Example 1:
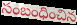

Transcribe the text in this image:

సంబంధించిన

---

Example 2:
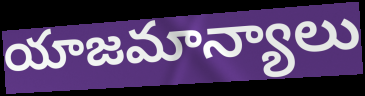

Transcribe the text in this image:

యాజమాన్యాలు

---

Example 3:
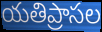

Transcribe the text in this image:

యతిప్రాసల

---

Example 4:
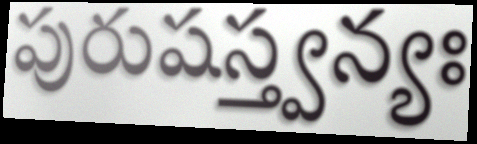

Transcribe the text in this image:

పురుషస్త్వన్యః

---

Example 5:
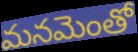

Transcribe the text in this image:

మనమెంతో